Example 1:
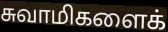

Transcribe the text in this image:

சுவாமிகளைக்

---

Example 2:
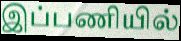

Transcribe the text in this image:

இப்பணியில்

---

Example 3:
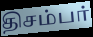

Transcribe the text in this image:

திசம்பர்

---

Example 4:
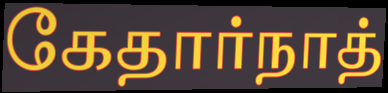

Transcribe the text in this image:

கேதார்நாத்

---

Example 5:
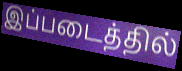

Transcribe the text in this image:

இப்படைத்தில்